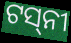
ଟସ୍‌ନୀ